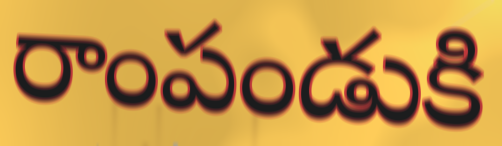
రాంపండుకి